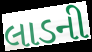
લાડની